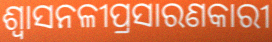
ଶ୍ୱାସନଳୀପ୍ରସାରଣକାରୀ